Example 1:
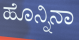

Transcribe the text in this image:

ಹೊನ್ನಿನಾ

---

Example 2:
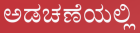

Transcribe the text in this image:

ಅಡಚಣೆಯಲ್ಲಿ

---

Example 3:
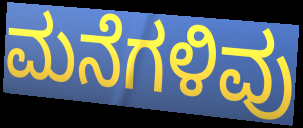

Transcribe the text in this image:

ಮನೆಗಳಿವು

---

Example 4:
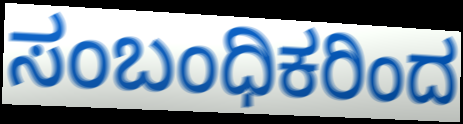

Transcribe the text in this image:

ಸಂಬಂಧಿಕರಿಂದ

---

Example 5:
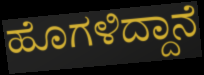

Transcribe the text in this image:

ಹೊಗಳಿದ್ದಾನೆ